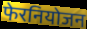
फेरनियोजन